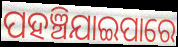
ପହଞ୍ଚିଯାଇପାରେ